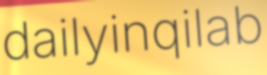
dailyinqilab